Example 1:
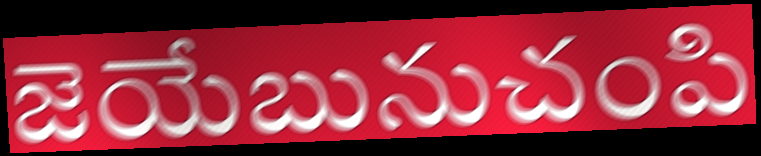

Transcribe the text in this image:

జెయేబునుచంపి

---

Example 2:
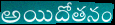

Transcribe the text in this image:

అయిదోతనం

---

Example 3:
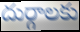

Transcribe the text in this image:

దుర్గాలకు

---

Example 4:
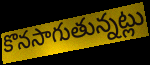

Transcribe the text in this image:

కొనసాగుతున్నట్లు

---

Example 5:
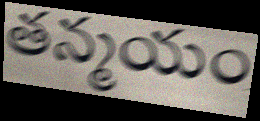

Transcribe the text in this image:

తన్మయం